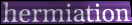
hermiation